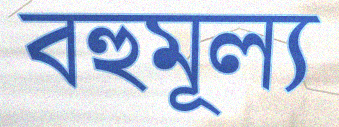
বহুমূল্য